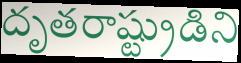
దృతరాష్ట్రుడిని